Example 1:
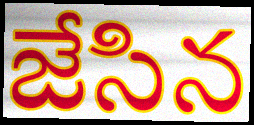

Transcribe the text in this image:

జేసిన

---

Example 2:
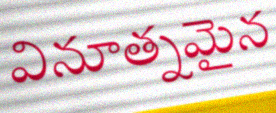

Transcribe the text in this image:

వినూత్నమైన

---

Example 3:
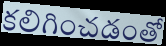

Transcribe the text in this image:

కలిగించడంతో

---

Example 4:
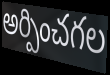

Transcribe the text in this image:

అర్పించగల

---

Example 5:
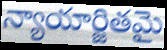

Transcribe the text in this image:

న్యాయార్జితమై